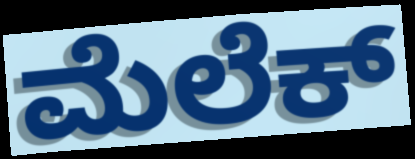
ಮೆಲೆಕ್